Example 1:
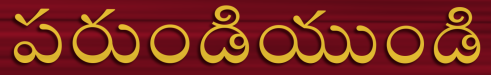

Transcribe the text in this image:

పరుండియుండి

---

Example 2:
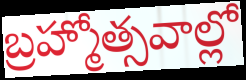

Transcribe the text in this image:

బ్రహ్మోత్సవాల్లో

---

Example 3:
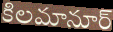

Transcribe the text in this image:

కిలమానూర్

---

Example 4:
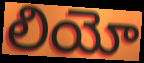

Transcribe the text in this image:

లియో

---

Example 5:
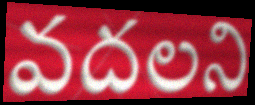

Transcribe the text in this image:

వదలని